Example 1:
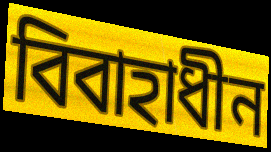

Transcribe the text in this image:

বিবাহাধীন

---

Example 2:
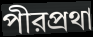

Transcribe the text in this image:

পীরপ্রথা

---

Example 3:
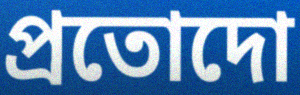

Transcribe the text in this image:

প্রতোদো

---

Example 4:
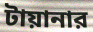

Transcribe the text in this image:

টায়ানার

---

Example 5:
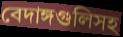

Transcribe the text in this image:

বেদাঙ্গগুলিসহ